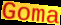
Goma